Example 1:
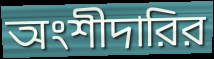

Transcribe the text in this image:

অংশীদারির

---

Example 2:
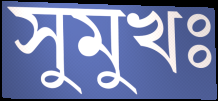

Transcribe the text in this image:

সুমুখঃ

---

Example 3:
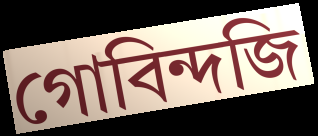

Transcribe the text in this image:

গোবিন্দজি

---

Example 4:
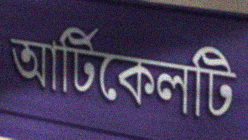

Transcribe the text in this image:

আর্টিকেলটি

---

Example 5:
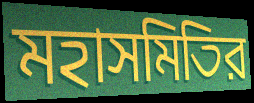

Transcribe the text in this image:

মহাসমিতির